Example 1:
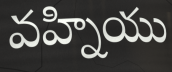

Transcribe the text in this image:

వహ్నియు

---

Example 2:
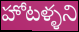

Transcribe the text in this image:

హోటళ్ళని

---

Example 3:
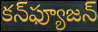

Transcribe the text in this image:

కన్‌ఫ్యూజన్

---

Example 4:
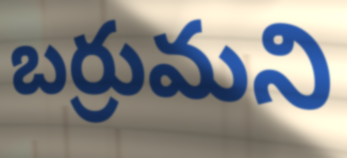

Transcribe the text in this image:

బర్రుమని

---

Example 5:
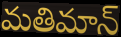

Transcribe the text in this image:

మతిమాన్